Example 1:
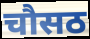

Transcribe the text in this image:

चौसठ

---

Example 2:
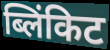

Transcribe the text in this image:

ब्लिंकिट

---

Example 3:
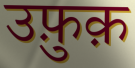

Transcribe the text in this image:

उफ़ुक़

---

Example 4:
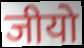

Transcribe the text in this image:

जीयो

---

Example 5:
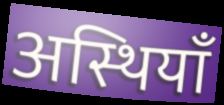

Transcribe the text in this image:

अस्थियाँ